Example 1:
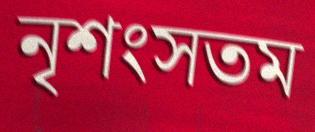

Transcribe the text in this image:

নৃশংসতম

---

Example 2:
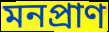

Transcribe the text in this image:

মনপ্রাণ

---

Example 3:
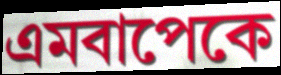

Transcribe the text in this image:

এমবাপেকে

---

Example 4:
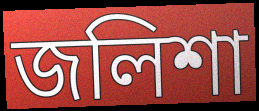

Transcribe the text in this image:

জলিশা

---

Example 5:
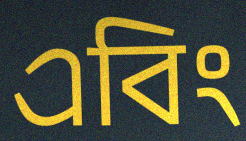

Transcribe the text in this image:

এবিং